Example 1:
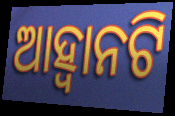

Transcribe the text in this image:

ଆହ୍ଵାନଟି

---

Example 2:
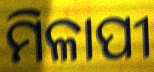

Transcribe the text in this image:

ମିଳାପୀ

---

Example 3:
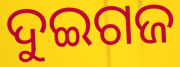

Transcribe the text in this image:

ଦୁଇଗଜ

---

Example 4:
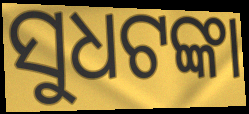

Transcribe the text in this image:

ସୁଧଟଙ୍କା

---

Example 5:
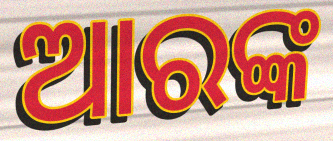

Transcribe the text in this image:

ଆରଙ୍କ